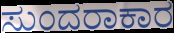
ಸುಂದರಾಕಾರ